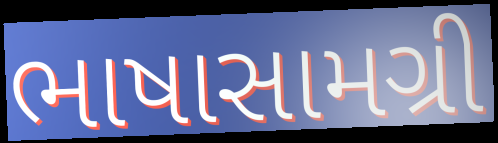
ભાષાસામગ્રી